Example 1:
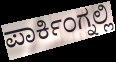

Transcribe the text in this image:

ಪಾರ್ಕಿಂಗ್ನಲ್ಲಿ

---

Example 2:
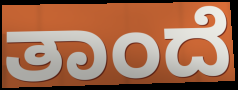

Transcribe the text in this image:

ತಾಂದೆ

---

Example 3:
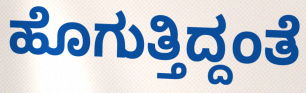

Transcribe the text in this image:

ಹೊಗುತ್ತಿದ್ದಂತೆ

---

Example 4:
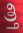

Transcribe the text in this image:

ತ್ತಿ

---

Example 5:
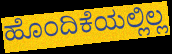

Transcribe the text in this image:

ಹೊಂದಿಕೆಯಲ್ಲಿಲ್ಲ